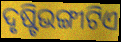
ଦୃଷ୍ଟିଭଙ୍ଗୀଟିଏ